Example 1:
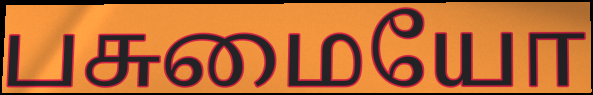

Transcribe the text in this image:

பசுமையோ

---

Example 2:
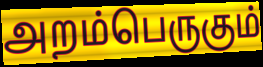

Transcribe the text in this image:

அறம்பெருகும்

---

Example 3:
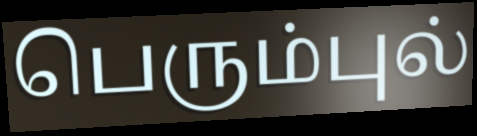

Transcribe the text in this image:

பெரும்புல்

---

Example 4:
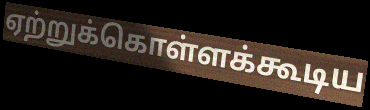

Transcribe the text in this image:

ஏற்றுக்கொள்ளக்கூடிய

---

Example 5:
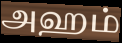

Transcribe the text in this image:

அஹம்